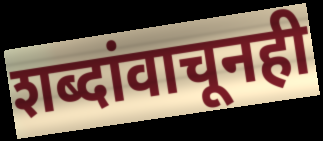
शब्दांवाचूनही